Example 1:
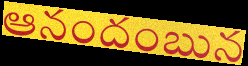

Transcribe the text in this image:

ఆనందంబున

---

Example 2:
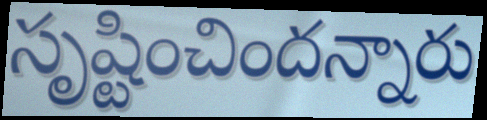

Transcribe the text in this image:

సృష్టించిందన్నారు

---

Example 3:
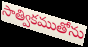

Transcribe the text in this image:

సాత్వికముతోను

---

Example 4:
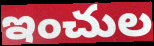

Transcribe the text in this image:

ఇంచుల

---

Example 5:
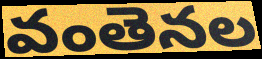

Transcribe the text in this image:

వంతెనల